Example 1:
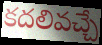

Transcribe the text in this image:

కదలివచ్చే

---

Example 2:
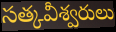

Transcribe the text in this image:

సత్కవీశ్వరులు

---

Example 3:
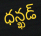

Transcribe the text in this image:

ధన్ఖడ్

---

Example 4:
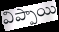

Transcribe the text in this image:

విప్పాయి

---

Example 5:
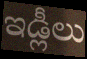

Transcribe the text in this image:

ఇడ్లీలు